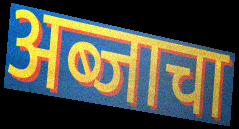
अब्जाचा